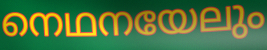
നെഥനയേലും